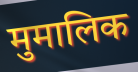
मुमालिक